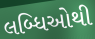
લબ્ધિઓથી